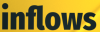
inflows